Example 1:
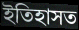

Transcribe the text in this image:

ইতিহাসত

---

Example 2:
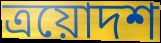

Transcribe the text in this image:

ত্ৰয়োদশ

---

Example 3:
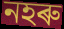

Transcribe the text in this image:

নহৰু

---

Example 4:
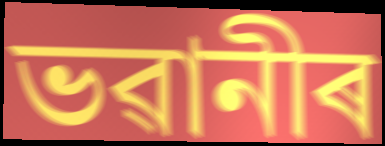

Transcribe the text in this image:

ভৱানীৰ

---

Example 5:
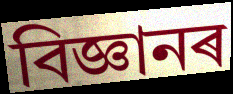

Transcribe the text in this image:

বিজ্ঞানৰ